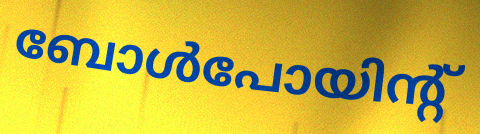
ബോൾപോയിന്റ്